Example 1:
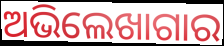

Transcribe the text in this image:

ଅଭିଲେଖାଗାର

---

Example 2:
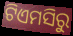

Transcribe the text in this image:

ଟିଏମସିରୁ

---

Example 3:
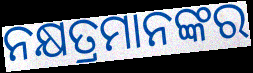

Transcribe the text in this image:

ନକ୍ଷତ୍ରମାନଙ୍କର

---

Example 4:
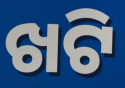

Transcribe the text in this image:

ଖଟି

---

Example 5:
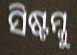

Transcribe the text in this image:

ସିଷ୍ଟମ୍କୁ